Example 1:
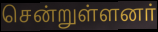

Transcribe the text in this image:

சென்றுள்ளனர்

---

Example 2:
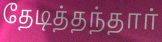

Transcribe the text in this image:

தேடித்தந்தார்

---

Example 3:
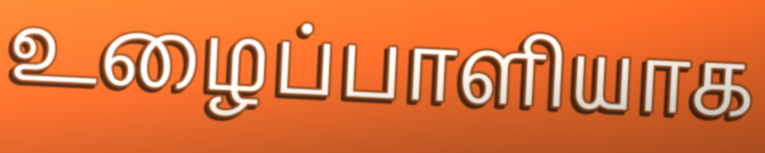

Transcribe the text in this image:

உழைப்பாளியாக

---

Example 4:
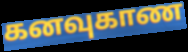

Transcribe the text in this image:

கனவுகாண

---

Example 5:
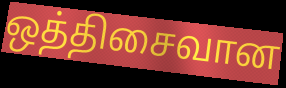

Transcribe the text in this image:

ஒத்திசைவான